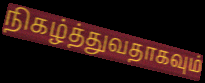
நிகழ்த்துவதாகவும்